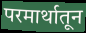
परमार्थातून